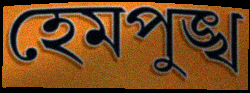
হেমপুঙ্খ